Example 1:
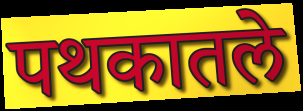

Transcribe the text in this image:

पथकातले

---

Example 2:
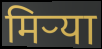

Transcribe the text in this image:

मिऱ्या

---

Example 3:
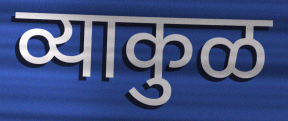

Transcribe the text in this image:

व्याकुळ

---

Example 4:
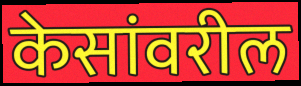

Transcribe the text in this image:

केसांवरील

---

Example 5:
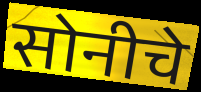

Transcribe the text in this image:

सोनीचे